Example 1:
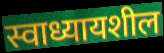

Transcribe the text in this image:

स्वाध्यायशील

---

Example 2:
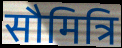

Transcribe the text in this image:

सौमित्रि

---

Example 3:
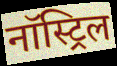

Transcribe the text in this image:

नॉस्ट्रिल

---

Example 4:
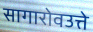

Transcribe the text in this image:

सागारोवउत्ते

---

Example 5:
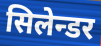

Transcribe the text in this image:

सिलेन्डर